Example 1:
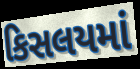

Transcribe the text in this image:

કિસલયમાં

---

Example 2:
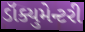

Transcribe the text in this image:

ડૉક્યુમેન્ટરી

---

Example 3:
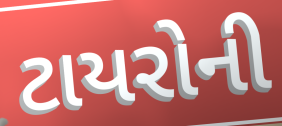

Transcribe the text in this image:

ટાયરોની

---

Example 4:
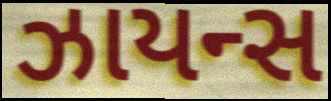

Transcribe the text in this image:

ઝાયન્સ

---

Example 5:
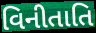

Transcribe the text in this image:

વિનીતાતિ